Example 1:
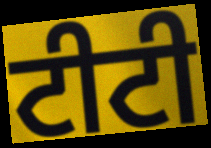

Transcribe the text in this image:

ਟੀਟੀ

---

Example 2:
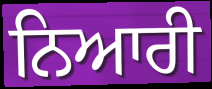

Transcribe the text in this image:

ਨਿਆਰੀ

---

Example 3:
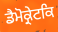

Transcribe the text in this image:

ਡੈਮੋਕ੍ਰੇਟਕਿ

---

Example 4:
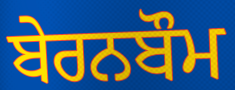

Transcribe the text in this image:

ਬੇਰਨਬੌਮ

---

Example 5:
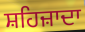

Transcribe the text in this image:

ਸ਼ਹਿਜ਼ਾਦਾ